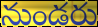
నుండరు